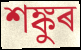
শঙ্কুৰ